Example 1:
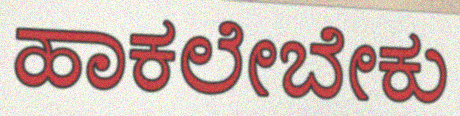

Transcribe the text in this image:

ಹಾಕಲೇಬೇಕು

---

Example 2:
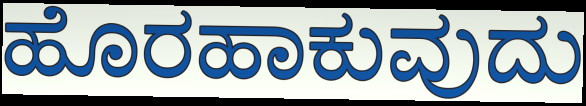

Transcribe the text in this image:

ಹೊರಹಾಕುವುದು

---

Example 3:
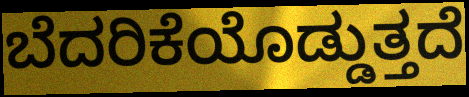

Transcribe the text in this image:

ಬೆದರಿಕೆಯೊಡ್ಡುತ್ತದೆ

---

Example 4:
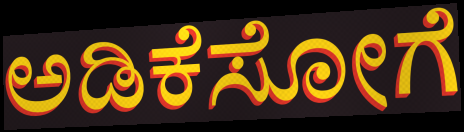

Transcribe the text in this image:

ಅಡಿಕೆಸೋಗೆ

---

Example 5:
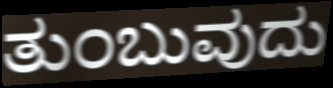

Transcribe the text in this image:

ತುಂಬುವುದು